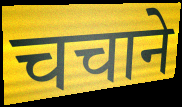
चचाने